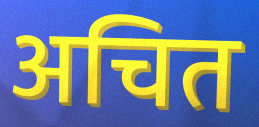
अचित